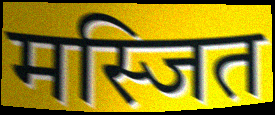
मस्जित